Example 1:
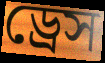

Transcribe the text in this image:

ড্রেস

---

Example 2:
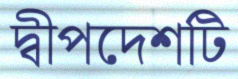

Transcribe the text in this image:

দ্বীপদেশটি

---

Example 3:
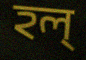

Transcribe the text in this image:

হল্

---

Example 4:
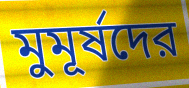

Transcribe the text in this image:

মুমূর্ষদের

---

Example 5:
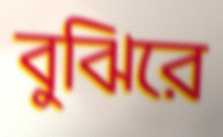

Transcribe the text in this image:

বুঝিরে